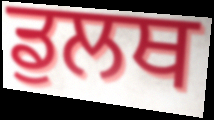
ਡੁਲਥ